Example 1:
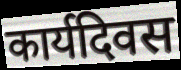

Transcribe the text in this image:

कार्यदिवस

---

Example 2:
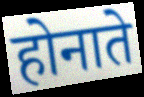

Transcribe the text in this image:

होनाते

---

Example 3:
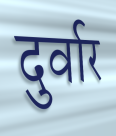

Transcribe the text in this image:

दुर्वार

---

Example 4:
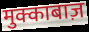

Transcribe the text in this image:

मुक्काबाज़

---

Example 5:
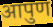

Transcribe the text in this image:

आपुण